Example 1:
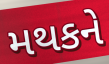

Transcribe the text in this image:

મથકને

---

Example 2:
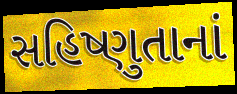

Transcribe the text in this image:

સહિષ્ણુતાનાં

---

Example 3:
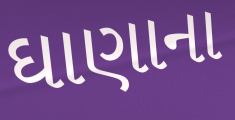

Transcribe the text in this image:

ઘાણાના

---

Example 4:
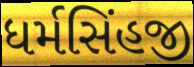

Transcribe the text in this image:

ધર્મસિંહજી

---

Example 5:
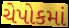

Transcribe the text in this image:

ચેપોકમાં